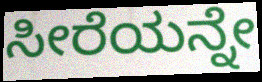
ಸೀರೆಯನ್ನೇ